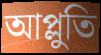
আপ্লুতি